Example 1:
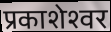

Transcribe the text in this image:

प्रकाशेश्वर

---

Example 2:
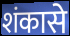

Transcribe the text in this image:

शंकासे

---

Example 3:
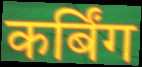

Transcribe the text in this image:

कर्बिंग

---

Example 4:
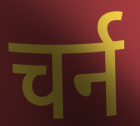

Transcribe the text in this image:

चर्न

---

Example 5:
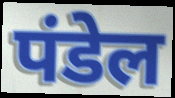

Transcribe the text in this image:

पंडेल